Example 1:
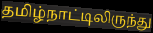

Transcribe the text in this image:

தமிழ்நாட்டிலிருந்து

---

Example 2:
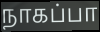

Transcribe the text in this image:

நாகப்பா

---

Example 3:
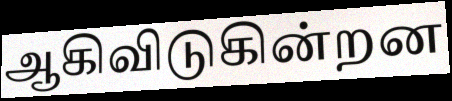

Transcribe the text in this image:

ஆகிவிடுகின்றன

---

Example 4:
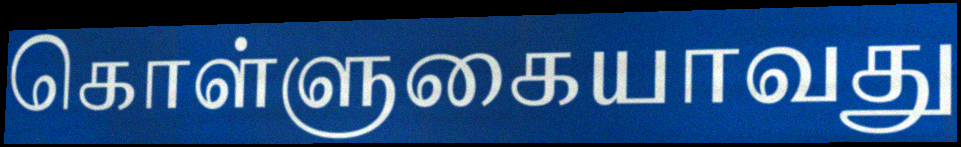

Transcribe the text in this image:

கொள்ளுகையாவது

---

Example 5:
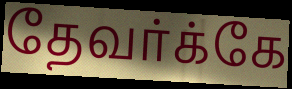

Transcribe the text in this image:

தேவர்க்கே